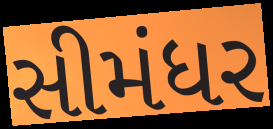
સીમંધર